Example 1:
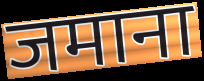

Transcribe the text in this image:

जमाना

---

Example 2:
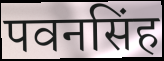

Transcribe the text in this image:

पवनसिंह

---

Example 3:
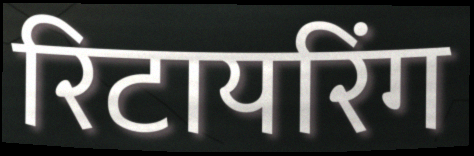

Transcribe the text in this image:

रिटायरिंग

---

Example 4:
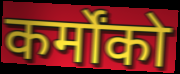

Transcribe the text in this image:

कर्मोंको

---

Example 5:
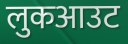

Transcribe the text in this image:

लुकआउट